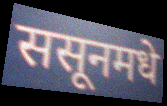
ससूनमधे